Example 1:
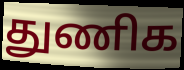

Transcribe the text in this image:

துணிக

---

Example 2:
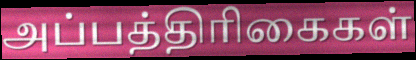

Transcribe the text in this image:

அப்பத்திரிகைகள்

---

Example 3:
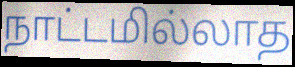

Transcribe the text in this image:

நாட்டமில்லாத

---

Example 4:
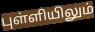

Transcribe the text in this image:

புள்ளியிலும்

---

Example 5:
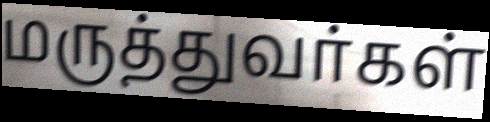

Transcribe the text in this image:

மருத்துவர்கள்